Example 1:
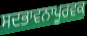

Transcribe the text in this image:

ਸਦਭਾਵਨਾਪੂਰਵਕ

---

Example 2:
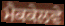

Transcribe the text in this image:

ਮੈਕਕੇਲਵੇ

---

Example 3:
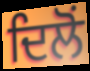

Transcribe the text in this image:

ਦਿਲੋਂ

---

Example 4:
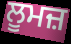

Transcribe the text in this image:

ਲੂਮਜ਼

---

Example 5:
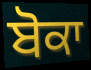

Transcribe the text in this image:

ਬੋਕਾ